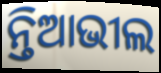
ନ୍ତିଆଭୀଲ